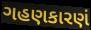
ગહણકારણં